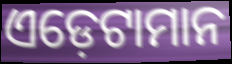
ଏଡ଼େଟାମାନ